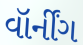
વૉર્નીંગ